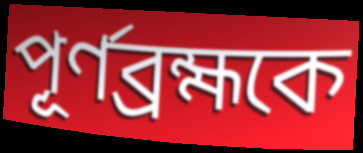
পূর্ণব্রহ্মকে